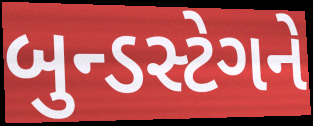
બુન્ડસ્ટેગને